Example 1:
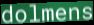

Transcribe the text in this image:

dolmens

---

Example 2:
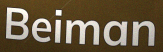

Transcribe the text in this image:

Beiman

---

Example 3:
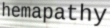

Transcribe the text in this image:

hemapathy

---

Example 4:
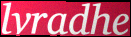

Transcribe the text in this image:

lvradhe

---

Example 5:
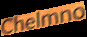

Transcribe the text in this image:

Chelmno